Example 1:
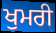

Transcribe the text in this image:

ਖੁਮਰੀ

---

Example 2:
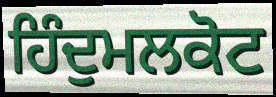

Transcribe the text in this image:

ਹਿੰਦੁਮਲਕੋਟ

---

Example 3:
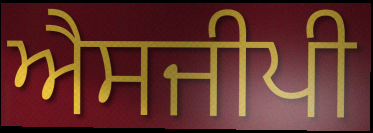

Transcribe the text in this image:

ਐਸਜੀਪੀ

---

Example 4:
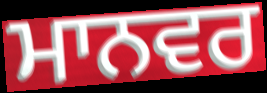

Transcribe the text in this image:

ਮਾਨਵਰ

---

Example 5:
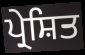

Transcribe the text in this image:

ਪ੍ਰੇਸ਼ਿਤ